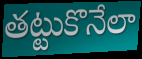
తట్టుకొనేలా